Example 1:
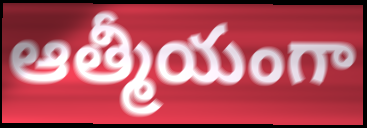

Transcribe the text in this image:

ఆత్మీయంగా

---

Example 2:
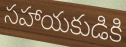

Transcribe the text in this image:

సహాయకుడికి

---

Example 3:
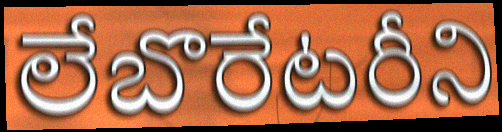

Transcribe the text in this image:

లేబొరేటరీని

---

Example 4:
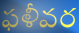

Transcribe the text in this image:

ఫళీవర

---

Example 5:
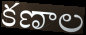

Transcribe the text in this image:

కణాల